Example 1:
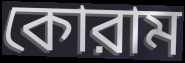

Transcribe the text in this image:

কোরাম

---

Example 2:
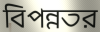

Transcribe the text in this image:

বিপন্নতর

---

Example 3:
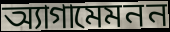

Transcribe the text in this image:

অ্যাগামেমনন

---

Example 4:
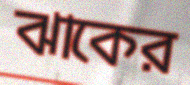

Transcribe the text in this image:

ঝাকের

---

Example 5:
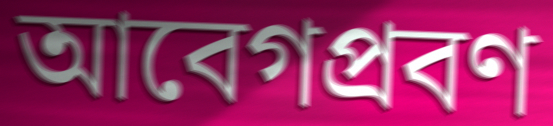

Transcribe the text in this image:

আবেগপ্রবণ